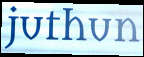
juthun